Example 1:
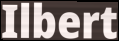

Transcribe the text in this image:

Ilbert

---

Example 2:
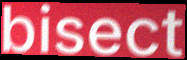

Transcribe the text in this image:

bisect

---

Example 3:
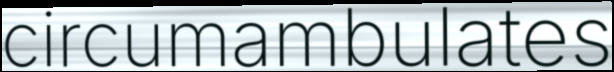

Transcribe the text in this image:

circumambulates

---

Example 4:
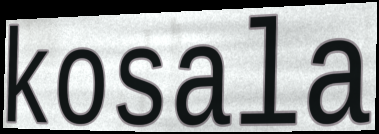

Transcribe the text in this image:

kosala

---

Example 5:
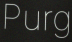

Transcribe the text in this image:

Purg